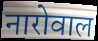
नारोवाल